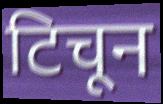
टिचून